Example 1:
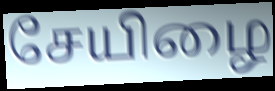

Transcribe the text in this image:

சேயிழை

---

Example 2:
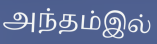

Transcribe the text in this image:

அந்தம்இல்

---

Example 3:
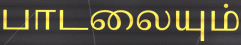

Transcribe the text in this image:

பாடலையும்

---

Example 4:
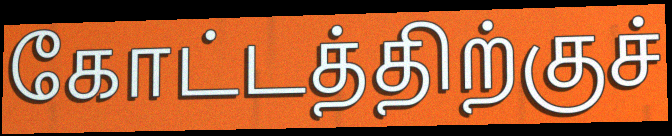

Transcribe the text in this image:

கோட்டத்திற்குச்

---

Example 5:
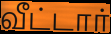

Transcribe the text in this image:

வீட்டார்